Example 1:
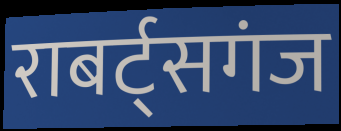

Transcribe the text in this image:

राबर्ट्सगंज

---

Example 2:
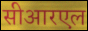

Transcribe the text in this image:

सीआरएल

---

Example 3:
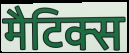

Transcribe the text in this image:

मैटिक्स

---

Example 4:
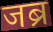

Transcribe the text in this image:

जब्र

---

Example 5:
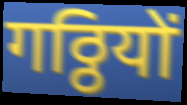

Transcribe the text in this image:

गठ्ठियों